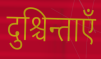
दुश्चिन्ताएँ